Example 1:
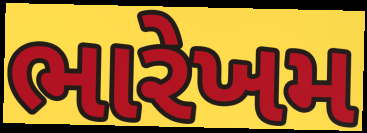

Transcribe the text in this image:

ભારેખમ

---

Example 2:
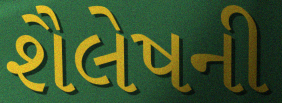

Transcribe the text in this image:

શૈલેષની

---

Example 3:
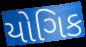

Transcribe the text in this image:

યોગિક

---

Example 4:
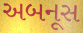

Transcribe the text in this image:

અબનૂસ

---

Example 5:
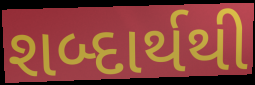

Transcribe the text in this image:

શબ્દાર્થથી